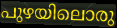
പുഴയിലൊരു